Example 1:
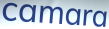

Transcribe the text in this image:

camara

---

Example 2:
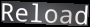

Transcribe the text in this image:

Reload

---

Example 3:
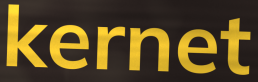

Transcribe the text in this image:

kernet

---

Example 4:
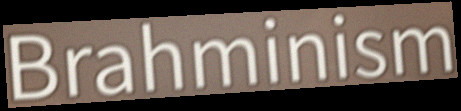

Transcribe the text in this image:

Brahminism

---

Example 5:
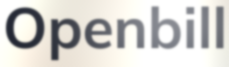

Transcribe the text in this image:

Openbill